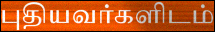
புதியவர்களிடம்